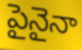
పైనైనా